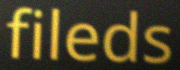
fileds